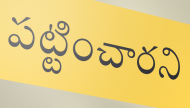
పట్టించారని